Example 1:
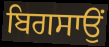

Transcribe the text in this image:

ਬਿਗਸਾਉਂ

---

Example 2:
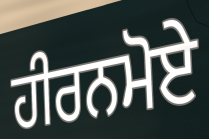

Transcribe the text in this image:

ਹੀਰਨਮੋਏ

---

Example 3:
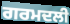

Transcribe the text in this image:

ਗਰਮਦਲੀ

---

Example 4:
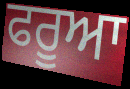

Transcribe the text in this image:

ਫਰੂਆ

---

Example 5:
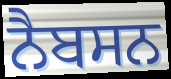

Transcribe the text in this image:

ਨੈਬਸਨ